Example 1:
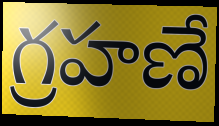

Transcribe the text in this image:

గ్రహణే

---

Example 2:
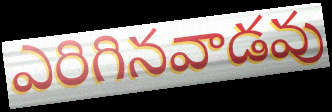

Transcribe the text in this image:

ఎరిగినవాడవు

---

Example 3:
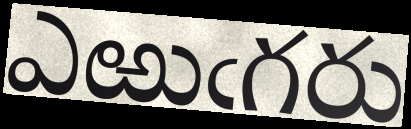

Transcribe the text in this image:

ఎఱుఁగరు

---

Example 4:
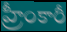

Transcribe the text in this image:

హ్రీంకారీ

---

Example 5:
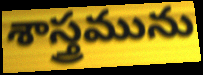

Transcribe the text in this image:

శాస్త్రమును